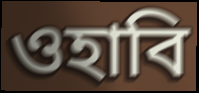
ওহাবি